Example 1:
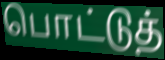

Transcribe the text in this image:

பொட்டுத்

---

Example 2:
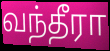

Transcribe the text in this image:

வந்தீரா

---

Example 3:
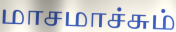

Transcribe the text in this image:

மாசமாச்சும்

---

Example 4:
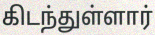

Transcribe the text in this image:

கிடந்துள்ளார்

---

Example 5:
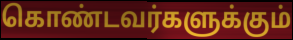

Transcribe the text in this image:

கொண்டவர்களுக்கும்